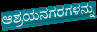
ಆಶ್ರಯನಗರಗಳನ್ನು